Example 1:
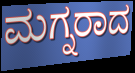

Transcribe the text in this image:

ಮಗ್ನರಾದ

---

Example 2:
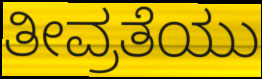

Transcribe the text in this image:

ತೀವ್ರತೆಯು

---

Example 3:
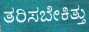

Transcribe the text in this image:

ತರಿಸಬೇಕಿತ್ತು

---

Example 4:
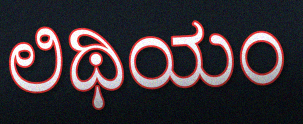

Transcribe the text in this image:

ಲಿಥಿಯಂ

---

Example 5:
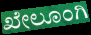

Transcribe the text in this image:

ಖೇಲೂಂಗಿ